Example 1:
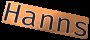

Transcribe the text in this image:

Hanns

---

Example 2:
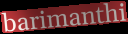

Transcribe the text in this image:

barimanthi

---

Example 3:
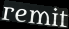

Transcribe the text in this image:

remit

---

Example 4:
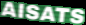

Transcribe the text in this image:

AISATS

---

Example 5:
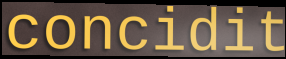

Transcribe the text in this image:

concidit